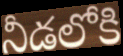
నీడలోకి